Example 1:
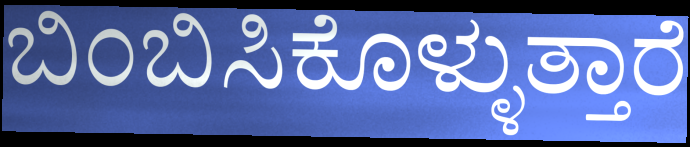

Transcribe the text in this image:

ಬಿಂಬಿಸಿಕೊಳ್ಳುತ್ತಾರೆ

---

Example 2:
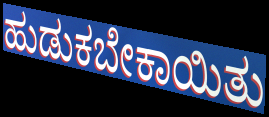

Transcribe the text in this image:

ಹುಡುಕಬೇಕಾಯಿತು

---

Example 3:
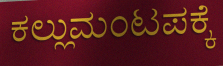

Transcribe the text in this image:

ಕಲ್ಲುಮಂಟಪಕ್ಕೆ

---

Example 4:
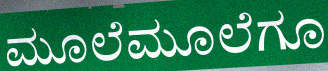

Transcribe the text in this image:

ಮೂಲೆಮೂಲೆಗೂ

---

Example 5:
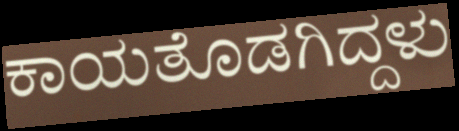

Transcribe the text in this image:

ಕಾಯತೊಡಗಿದ್ದಳು